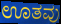
ಊತವು